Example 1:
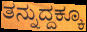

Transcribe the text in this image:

ತನ್ನುದ್ದಕ್ಕೂ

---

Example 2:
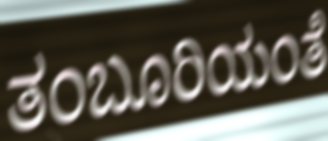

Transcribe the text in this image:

ತಂಬೂರಿಯಂತೆ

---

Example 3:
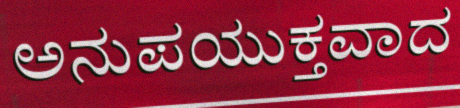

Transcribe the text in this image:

ಅನುಪಯುಕ್ತವಾದ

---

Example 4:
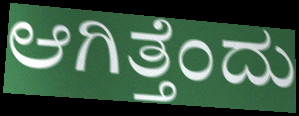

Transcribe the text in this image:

ಆಗಿತ್ತೆಂದು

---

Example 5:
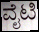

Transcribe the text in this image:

ವೈಟಿ